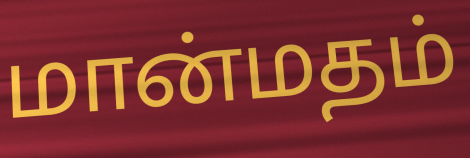
மான்மதம்